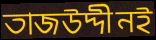
তাজউদ্দীনই